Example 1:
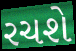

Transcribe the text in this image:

રચશે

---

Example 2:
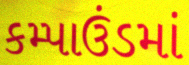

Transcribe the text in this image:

કમ્પાઉંડમાં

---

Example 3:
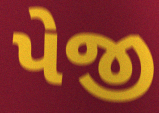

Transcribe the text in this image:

પેજી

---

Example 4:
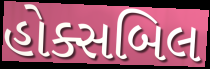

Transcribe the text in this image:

હોક્સબિલ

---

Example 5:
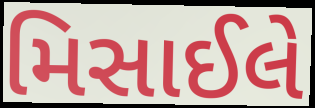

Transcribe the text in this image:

મિસાઈલે